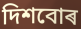
দিশবোৰ